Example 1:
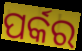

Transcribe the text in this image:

ପର୍କର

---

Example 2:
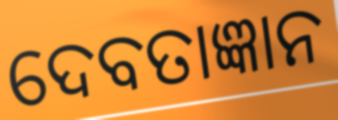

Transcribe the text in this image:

ଦେବତାଜ୍ଞାନ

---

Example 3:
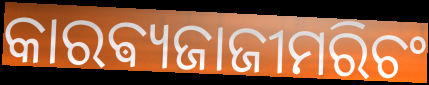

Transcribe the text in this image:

କାରଵ୍ଯଜାଜୀମରିଚଂ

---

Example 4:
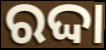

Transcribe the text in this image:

ରଦ୍ଦା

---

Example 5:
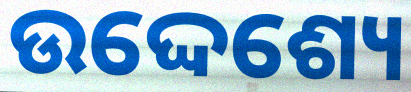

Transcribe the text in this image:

ଉଦ୍ଦେଶ୍ୟେ